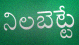
నిలబెట్టే